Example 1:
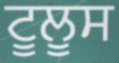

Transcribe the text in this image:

ਟੂਲੂਸ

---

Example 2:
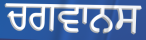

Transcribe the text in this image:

ਚਗਵਾਨਸ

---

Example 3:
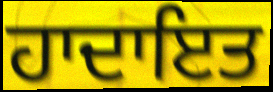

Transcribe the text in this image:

ਹਾਦਾਇਤ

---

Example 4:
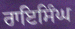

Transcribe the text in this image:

ਰਾਇਸਿੰਘ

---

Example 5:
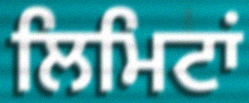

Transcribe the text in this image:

ਲਿਮਿਟਾਂ